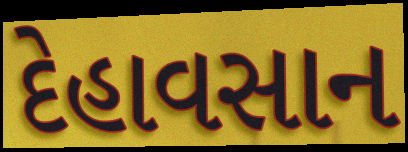
દેહાવસાન